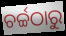
ଚର୍ଚ୍ଚଠାରୁ